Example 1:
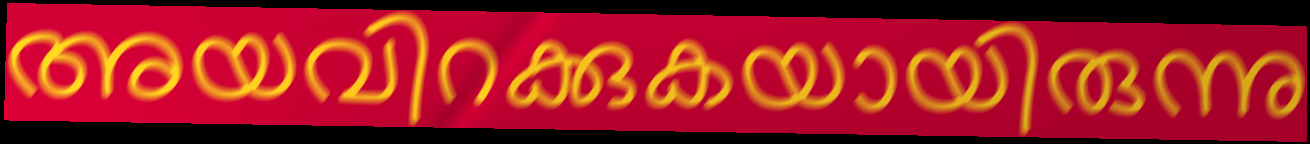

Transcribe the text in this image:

അയവിറക്കുകയായിരുന്നു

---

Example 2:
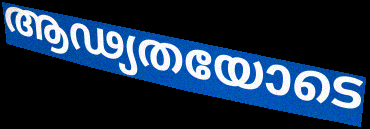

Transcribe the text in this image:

ആഢ്യതയോടെ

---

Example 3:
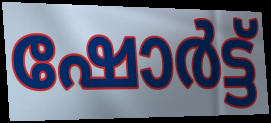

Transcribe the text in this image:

ഷോർട്ട്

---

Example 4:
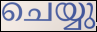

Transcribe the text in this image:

ചെയ്യു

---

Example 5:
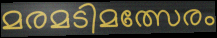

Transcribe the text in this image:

മരമടിമത്സേരം